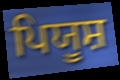
ਪਿਯੂਸ਼